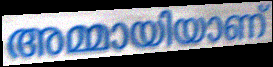
അമ്മായിയാണ്